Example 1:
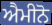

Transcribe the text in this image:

ਐਮੀਨੋ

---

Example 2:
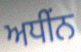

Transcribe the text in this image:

ਅਧੀਂਨ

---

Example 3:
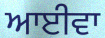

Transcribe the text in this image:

ਆਈਵਾ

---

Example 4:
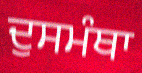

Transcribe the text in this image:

ਦੁਸਮੰਥਾ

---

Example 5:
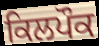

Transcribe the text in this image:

ਕਿਲਪੌਕ